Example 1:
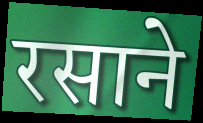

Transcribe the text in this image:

रसाने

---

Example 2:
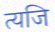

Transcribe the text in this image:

त्यजि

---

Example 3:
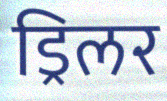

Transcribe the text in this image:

ड्रिलर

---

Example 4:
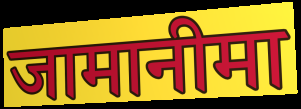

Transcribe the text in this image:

जामानीमा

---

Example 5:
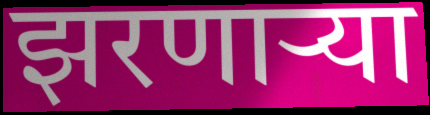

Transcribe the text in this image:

झरणाऱ्या